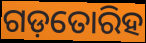
ଗଡ଼ତୋରିହ